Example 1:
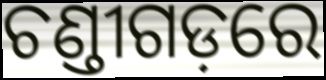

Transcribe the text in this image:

ଚଣ୍ଡୀଗଡ଼ରେ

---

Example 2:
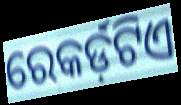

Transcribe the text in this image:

ରେକର୍ଡ଼ଟିଏ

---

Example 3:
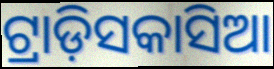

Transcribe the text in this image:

ଟ୍ରାଡ଼ିସକାସିଆ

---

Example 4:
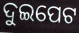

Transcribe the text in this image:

ଦୁଇପେଟ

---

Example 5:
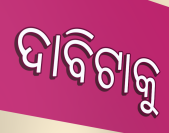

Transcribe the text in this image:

ଦାବିଟାକୁ